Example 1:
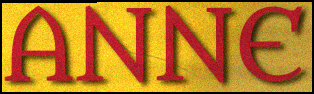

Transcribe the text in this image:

ANNE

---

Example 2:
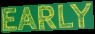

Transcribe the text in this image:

EARLY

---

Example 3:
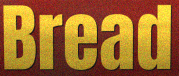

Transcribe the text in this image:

Bread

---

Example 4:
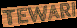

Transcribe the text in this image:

TEWARI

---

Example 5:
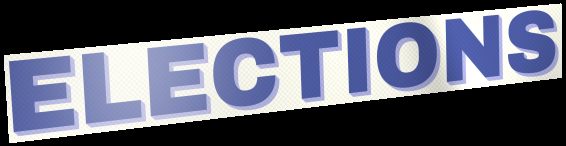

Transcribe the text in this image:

ELECTIONS